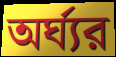
অর্ঘ্যর